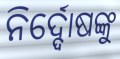
ନିର୍ଦ୍ଦୋଷଙ୍କୁ